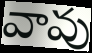
వావు